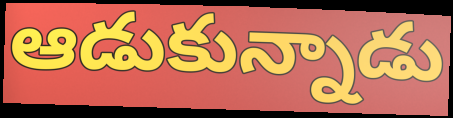
ఆడుకున్నాడు